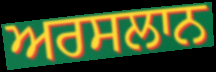
ਅਰਸਲਾਨ